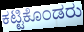
ಕಟ್ಟಿಕೊಂಡರು